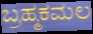
ಬ್ರಹ್ಮಕಮಲ